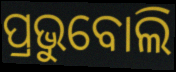
ପ୍ରଭୁବୋଲି